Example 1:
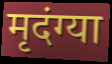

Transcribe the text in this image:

मृदंग्या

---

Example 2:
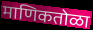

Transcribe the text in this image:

माणिकतोळा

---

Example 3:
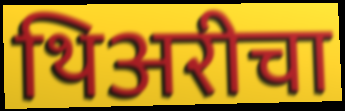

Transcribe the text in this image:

थिअरीचा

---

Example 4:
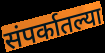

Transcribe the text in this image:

संपर्कातल्या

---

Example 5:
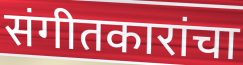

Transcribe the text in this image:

संगीतकारांचा